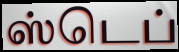
ஸ்டெப்